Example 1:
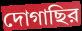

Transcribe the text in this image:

দোগাছির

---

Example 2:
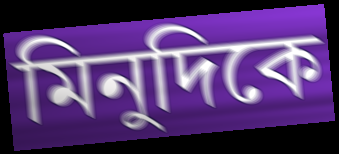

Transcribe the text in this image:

মিনুদিকে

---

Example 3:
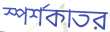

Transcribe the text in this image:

স্পর্শকাতর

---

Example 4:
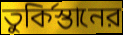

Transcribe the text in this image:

তুর্কিস্তানের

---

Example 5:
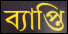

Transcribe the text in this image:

ব্যাপ্তি